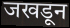
जखडून